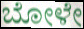
ಬೋಳೇ